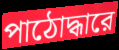
পাঠোদ্ধারে